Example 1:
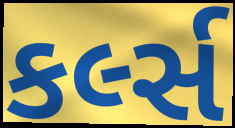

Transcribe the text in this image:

કર્લ્સ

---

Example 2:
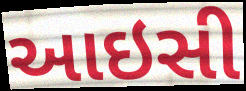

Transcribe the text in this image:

આઇસી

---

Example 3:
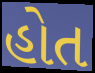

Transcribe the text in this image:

હોત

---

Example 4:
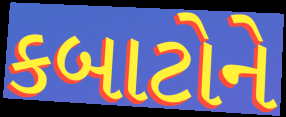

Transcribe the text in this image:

કબાટોને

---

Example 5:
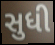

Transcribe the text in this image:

સુધી